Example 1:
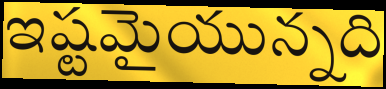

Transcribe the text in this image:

ఇష్టమైయున్నది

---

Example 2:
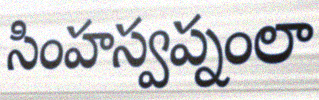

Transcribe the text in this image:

సింహస్వప్నంలా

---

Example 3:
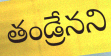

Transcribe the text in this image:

తండ్రేనని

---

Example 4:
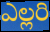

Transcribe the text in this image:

ఎల్లరి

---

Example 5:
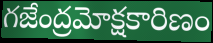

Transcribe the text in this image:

గజేంద్రమోక్షకారిణం